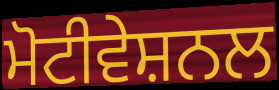
ਮੋਟੀਵੇਸ਼ਨਲ